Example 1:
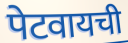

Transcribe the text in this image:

पेटवायची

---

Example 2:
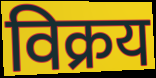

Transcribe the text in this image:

विक्रय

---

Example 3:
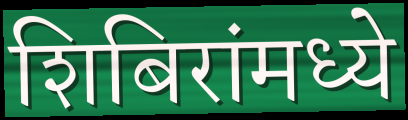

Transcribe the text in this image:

शिबिरांमध्ये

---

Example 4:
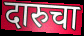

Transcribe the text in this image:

दारुचा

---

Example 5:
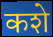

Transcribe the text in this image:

कशे